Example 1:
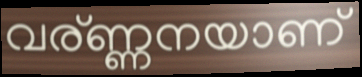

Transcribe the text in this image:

വര്ണ്ണനയാണ്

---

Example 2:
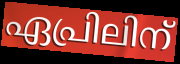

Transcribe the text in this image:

ഏപ്രിലിന്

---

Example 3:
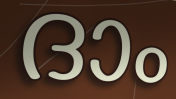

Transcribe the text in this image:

ദാം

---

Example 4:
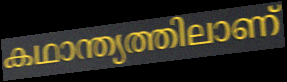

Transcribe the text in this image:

കഥാന്ത്യത്തിലാണ്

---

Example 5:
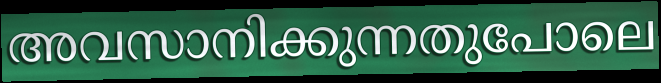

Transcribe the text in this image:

അവസാനിക്കുന്നതുപോലെ